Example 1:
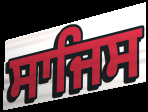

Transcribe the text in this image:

ਸਾਜਿਸ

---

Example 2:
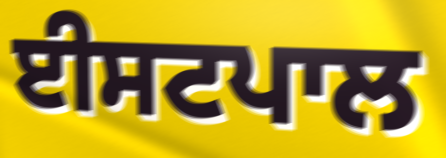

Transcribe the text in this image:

ਈਸਟਪਾਲ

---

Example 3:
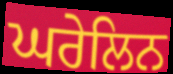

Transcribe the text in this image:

ਘਰੇਲਿਨ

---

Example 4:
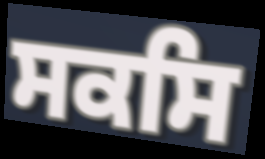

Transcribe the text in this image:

ਸਕਸਿ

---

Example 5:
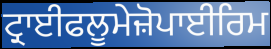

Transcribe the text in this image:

ਟ੍ਰਾਈਫਲੂਮੇਜ਼ੋਪਾਈਰਿਮ